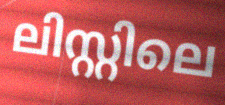
ലിസ്റ്റിലെ